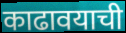
काढावयाची